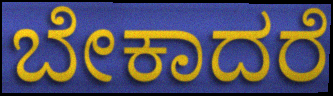
ಬೇಕಾದರೆ